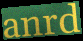
anrd